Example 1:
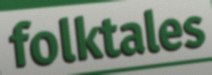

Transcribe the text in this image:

folktales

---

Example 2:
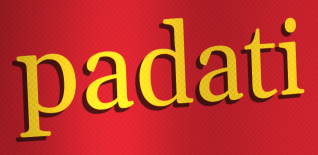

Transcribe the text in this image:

padati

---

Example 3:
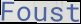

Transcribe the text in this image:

Foust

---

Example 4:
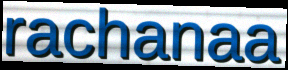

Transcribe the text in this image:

rachanaa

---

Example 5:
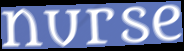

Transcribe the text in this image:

nurse